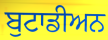
ਬੁਟਾਡੀਅਨ